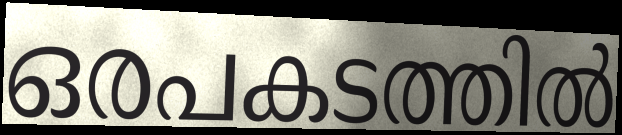
ഒരപകടത്തിൽ